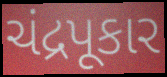
ચંદ્રપૂકાર